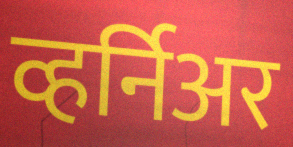
व्हर्निअर